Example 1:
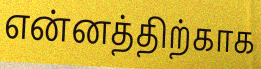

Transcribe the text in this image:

என்னத்திற்காக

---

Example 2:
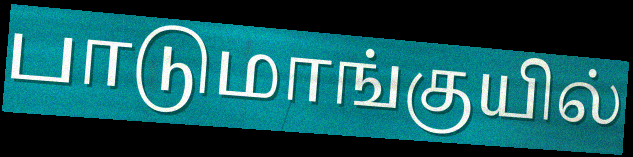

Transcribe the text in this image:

பாடுமாங்குயில்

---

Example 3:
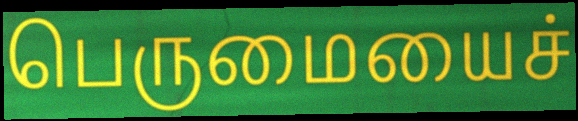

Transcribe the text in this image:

பெருமையைச்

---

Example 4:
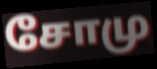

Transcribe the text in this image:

சோமு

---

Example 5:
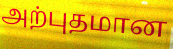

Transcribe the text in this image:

அற்புதமான